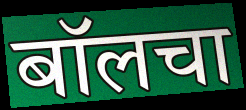
बॉलचा